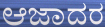
ಆಜಾದರ